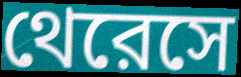
থেরেসে